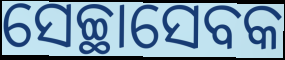
ସେଚ୍ଛାସେବକ